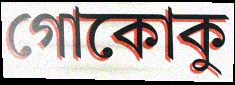
গোকোকু